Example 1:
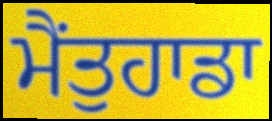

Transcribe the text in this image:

ਮੈਂਤੁਹਾਡਾ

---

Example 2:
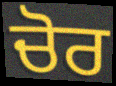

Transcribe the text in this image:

ਚੋਰ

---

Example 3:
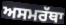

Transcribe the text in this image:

ਅਸਮਰੱਥਾ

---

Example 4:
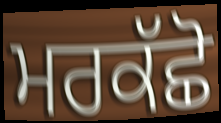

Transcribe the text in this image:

ਮਰਕੱਛੋ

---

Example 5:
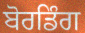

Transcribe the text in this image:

ਬੋਰਡਿੰਗ